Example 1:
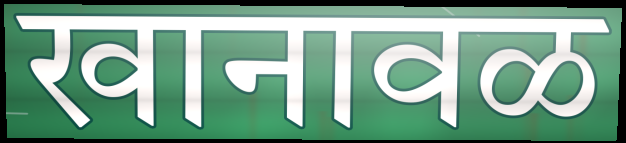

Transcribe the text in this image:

खानावळ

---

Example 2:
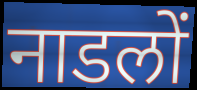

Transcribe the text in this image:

नाडलों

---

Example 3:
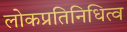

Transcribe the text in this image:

लोकप्रतिनिधित्व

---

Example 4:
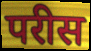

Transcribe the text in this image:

परीस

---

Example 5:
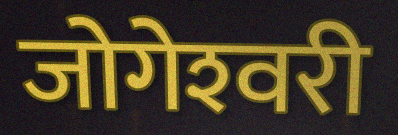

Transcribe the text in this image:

जोगेश्‍वरी